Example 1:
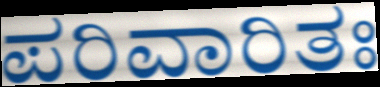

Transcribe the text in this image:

ಪರಿವಾರಿತಃ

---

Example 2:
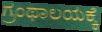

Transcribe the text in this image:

ಗ್ರಂಥಾಲಯಕ್ಕೆ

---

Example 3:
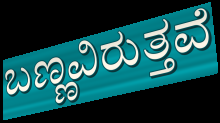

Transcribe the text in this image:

ಬಣ್ಣವಿರುತ್ತವೆ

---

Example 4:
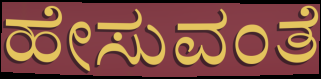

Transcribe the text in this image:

ಹೇಸುವಂತೆ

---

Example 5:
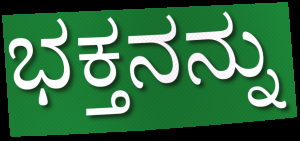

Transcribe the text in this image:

ಭಕ್ತನನ್ನು